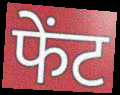
फेंट